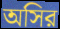
অসির